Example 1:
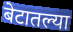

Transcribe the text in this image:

बेटातल्या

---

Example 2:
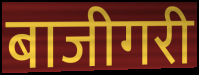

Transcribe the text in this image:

बाजीगरी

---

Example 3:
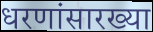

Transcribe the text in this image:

धरणांसारख्या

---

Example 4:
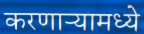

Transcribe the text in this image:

करणाऱ्यामध्ये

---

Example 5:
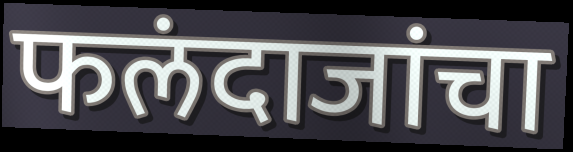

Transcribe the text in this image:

फलंदाजांचा